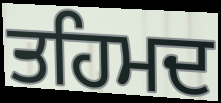
ਤਹਿਮਦ